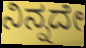
ನಿನ್ನದೇ